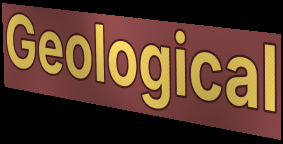
Geological